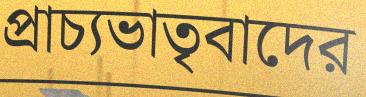
প্রাচ্যভাতৃবাদের